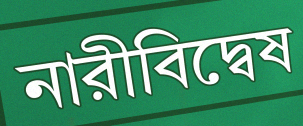
নারীবিদ্বেষ